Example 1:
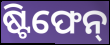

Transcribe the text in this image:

ଷ୍ଟିଫେନ୍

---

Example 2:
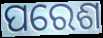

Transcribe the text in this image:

ପରେଶ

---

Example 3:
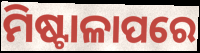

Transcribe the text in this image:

ମିଷ୍ଟାଳାପରେ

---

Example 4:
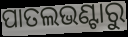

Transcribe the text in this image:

ପାତଲଭଣ୍ଟାରୁ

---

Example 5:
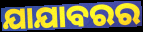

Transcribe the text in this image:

ଯାଯାବରର